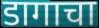
डागाचा